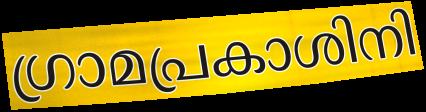
ഗ്രാമപ്രകാശിനി